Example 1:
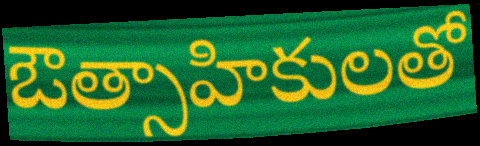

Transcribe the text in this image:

ఔత్సాహికులతో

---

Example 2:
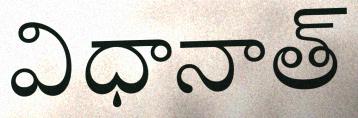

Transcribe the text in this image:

విధానాత్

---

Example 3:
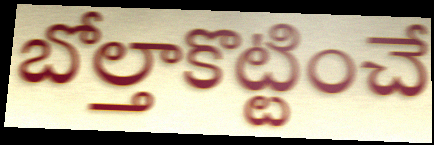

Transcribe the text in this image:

బోల్తాకొట్టించే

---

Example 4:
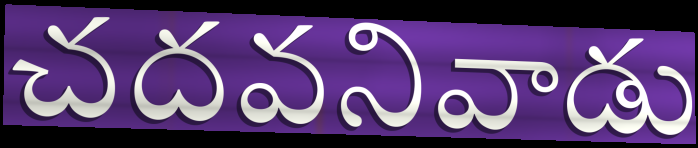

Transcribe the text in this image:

చదవనివాడు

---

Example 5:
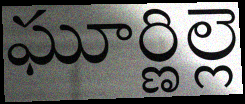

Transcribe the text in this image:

ఘూర్ణిల్లె